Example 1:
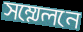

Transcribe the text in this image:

সম্মেলনে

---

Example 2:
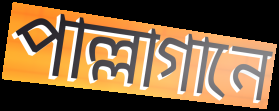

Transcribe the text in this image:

পাল্লাগানে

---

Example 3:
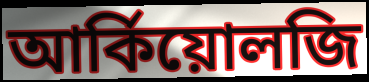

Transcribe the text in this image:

আর্কিয়োলজি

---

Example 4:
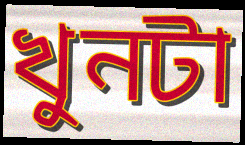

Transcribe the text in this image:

খুনটা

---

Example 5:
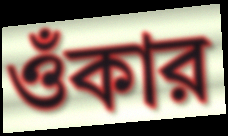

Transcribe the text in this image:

ওঁকার